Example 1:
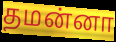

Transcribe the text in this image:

தமன்னா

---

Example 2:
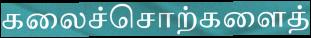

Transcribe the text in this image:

கலைச்சொற்களைத்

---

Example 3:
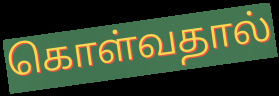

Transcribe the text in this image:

கொள்வதால்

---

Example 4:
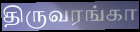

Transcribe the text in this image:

திருவரங்கா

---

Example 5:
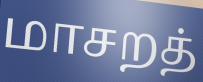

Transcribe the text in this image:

மாசறத்